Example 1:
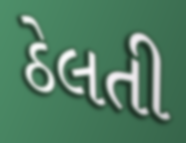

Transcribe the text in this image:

ઠેલતી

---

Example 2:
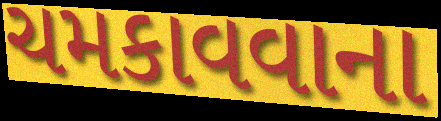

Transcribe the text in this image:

ચમકાવવાના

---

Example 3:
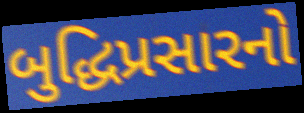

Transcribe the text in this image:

બુદ્ધિપ્રસારનો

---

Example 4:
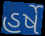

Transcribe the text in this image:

હર્ષે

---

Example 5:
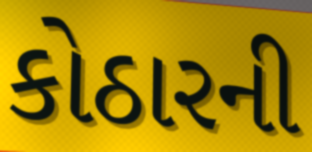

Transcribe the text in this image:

કોઠારની